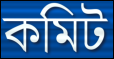
কমিট